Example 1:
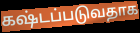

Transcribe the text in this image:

கஷ்டப்படுவதாக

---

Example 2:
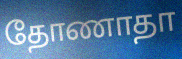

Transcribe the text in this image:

தோணாதா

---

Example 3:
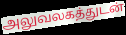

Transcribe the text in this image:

அலுவலகத்துடன்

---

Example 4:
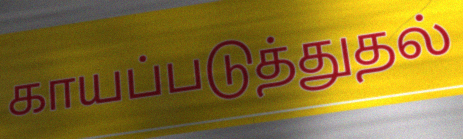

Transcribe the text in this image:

காயப்படுத்துதல்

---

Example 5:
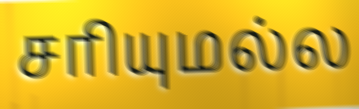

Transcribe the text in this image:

சரியுமல்ல